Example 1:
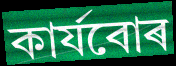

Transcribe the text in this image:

কাৰ্যবোৰ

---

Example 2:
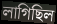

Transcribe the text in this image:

লাগিছিল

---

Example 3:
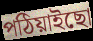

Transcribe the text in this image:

পঠিয়াইছো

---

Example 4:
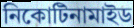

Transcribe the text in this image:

নিকোটিনামাইড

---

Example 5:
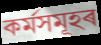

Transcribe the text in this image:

কৰ্মসমূহৰ